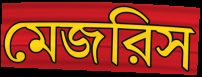
মেজরিস